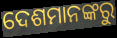
ଦେଶମାନଙ୍କରୁ